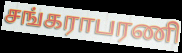
சங்கராபரணி